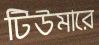
টিউমারে